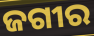
ଜଗୀର